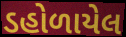
ડહોળાયેલ